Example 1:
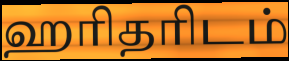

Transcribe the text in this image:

ஹரிதரிடம்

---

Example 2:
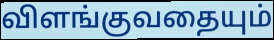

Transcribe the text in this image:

விளங்குவதையும்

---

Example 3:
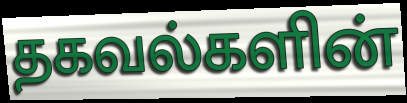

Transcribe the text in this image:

தகவல்களின்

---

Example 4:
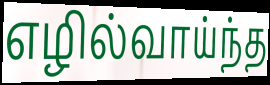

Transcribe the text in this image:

எழில்வாய்ந்த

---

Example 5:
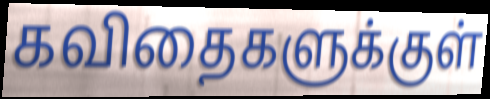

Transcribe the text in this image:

கவிதைகளுக்குள்